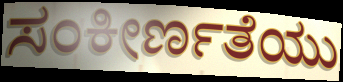
ಸಂಕೀರ್ಣತೆಯು